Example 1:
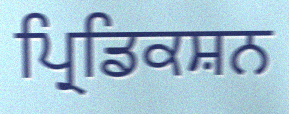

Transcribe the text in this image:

ਪ੍ਰਿਡਿਕਸ਼ਨ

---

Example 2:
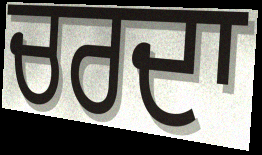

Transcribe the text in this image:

ਚਰਦਾ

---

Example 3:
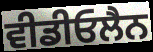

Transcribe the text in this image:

ਵੀਡੀਓਲੈਨ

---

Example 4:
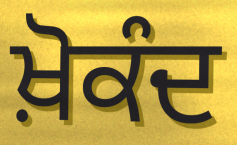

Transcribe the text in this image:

ਖ਼ੋਕੰਦ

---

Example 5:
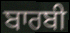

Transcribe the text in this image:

ਬਾਰਬੀ